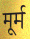
मूर्म